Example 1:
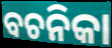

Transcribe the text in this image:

ବଚନିକା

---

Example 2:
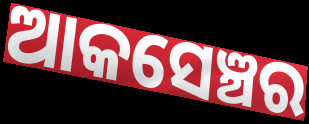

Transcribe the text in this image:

ଆକସେଞ୍ଚର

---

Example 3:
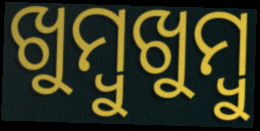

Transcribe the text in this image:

ଖୁମ୍ୱୁଖୁମ୍ବୁ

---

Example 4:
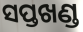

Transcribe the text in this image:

ସପ୍ତଖଣ୍ଡ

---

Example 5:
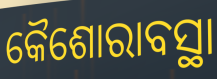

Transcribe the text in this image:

କୈଶୋରାବସ୍ଥା